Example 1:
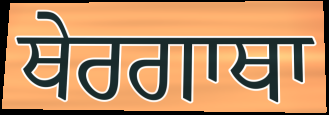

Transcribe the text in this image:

ਥੇਰਗਾਥਾ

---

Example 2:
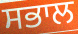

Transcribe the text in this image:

ਸਭਾਲ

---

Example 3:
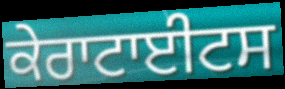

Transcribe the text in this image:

ਕੇਰਾਟਾਈਟਸ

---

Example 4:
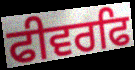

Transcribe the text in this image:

ਫੀਵਰਫਿ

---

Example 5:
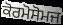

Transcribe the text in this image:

ਕੋਰਮੋਸੋਮਜ